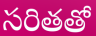
సరితతో